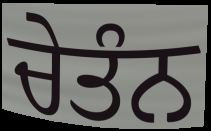
ਚੇਤੰਨ